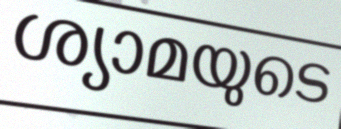
ശ്യാമയുടെ